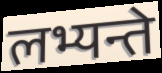
लभ्यन्ते